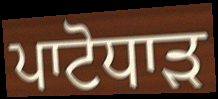
ਪਾਟੋਧਾੜ